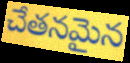
చేతనమైన